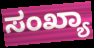
ಸಂಖ್ಯಾ